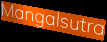
Mangalsutra